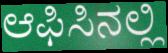
ಆಫಿಸಿನಲ್ಲಿ